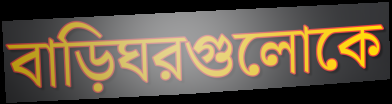
বাড়িঘরগুলোকে